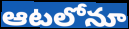
ఆటలోనూ